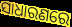
ସାଧାରଣରେ